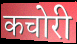
कचोरी